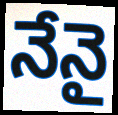
నేనై